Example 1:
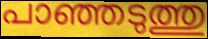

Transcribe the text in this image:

പാഞ്ഞടുത്തു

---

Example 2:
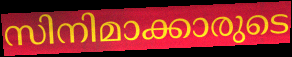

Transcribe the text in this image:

സിനിമാക്കാരുടെ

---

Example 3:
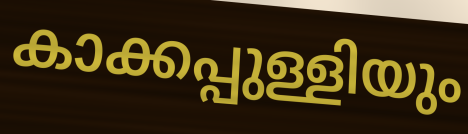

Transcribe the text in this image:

കാക്കപ്പുള്ളിയും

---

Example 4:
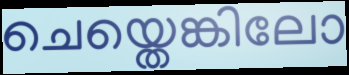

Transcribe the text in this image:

ചെയ്തെങ്കിലോ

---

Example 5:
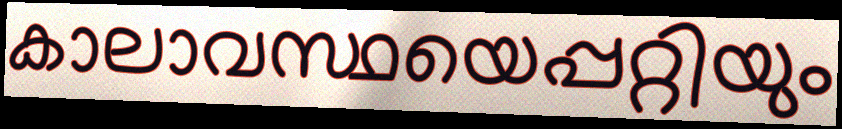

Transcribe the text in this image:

കാലാവസ്ഥയെപ്പറ്റിയും